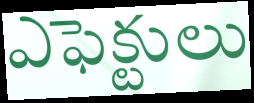
ఎఫెక్టులు